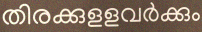
തിരക്കുളളവർക്കും